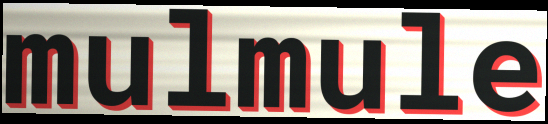
mulmule